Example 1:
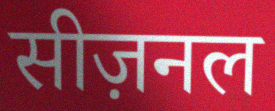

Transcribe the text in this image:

सीज़नल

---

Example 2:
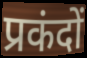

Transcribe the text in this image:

प्रकंदों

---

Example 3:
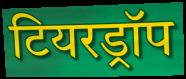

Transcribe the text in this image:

टियरड्रॉप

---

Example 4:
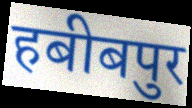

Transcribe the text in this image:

हबीबपुर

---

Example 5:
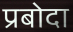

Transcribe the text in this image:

प्रबोदा